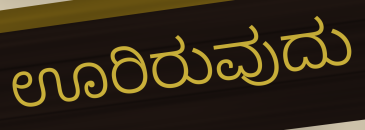
ಊರಿರುವುದು